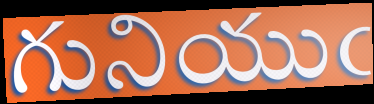
గునియుఁ